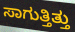
ಸಾಗುತ್ತಿತ್ತು